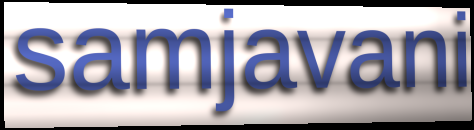
samjavani